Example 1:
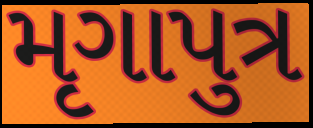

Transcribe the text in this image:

મૃગાપુત્ર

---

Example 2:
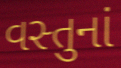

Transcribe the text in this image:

વસ્તુનાં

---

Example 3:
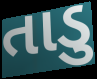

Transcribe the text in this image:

તાડુ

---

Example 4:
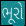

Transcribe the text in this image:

ભૂરો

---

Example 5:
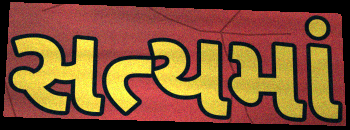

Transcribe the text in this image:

સત્યમાં